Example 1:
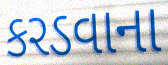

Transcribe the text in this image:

કરડવાના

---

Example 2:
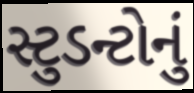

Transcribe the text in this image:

સ્ટુડન્ટોનું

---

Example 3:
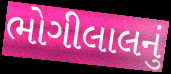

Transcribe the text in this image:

ભોગીલાલનું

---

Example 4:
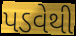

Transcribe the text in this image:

પડવેથી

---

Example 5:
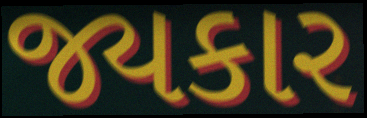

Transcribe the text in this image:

જ્યકાર